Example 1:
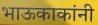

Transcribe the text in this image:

भाऊकाकांनी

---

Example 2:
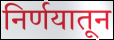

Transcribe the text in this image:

निर्णयातून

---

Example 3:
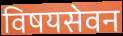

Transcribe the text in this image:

विषयसेवन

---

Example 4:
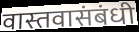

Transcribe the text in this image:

वास्तवासंबंधी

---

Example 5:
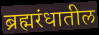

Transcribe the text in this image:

ब्रह्मरंधातील